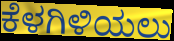
ಕೆಳಗಿಳಿಯಲು